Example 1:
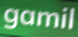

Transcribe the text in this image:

gamil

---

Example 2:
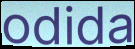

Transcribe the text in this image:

odida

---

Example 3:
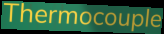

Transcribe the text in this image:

Thermocouple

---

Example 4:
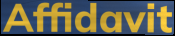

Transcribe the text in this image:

Affidavit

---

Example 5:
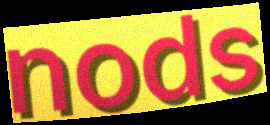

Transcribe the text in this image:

nods